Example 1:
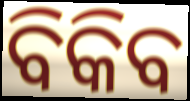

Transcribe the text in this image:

ବିକିବ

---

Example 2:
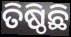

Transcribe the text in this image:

ତିଷ୍ଠିଛି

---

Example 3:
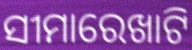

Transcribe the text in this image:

ସୀମାରେଖାଟି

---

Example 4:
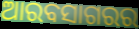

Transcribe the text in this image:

ଆରବସାଗରର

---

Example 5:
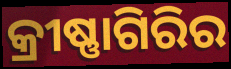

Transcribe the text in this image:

କ୍ରୀଷ୍ଣାଗିରିର